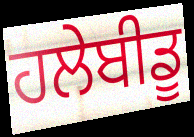
ਹਲੇਬੀਡੂ